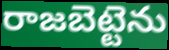
రాజబెట్టెను